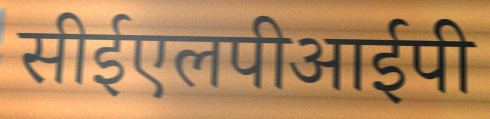
सीईएलपीआईपी